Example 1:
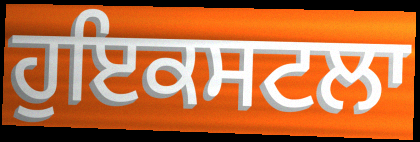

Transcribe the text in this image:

ਹੁਇਕਸਟਲਾ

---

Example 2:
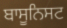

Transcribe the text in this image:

ਬਾਸੂਨਿਸਟ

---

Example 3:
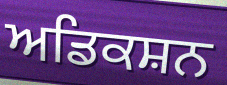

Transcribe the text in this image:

ਅਡਿਕਸ਼ਨ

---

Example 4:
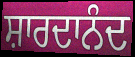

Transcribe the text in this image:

ਸ਼ਾਰਦਾਨੰਦ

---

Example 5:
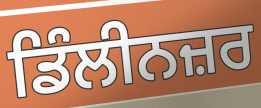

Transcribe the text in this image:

ਡਿੰਲੀਨਜ਼ਰ